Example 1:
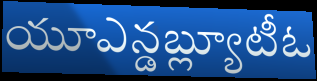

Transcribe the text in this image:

యూఎన్డబ్ల్యూటీఓ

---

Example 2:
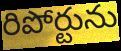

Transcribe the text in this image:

రిపోర్టును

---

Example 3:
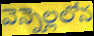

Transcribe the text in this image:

వెన్నెల్లలోన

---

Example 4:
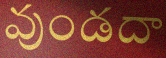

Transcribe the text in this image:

వుండదా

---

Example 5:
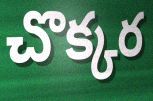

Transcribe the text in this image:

చొక్కర